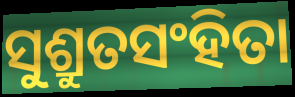
ସୁଶ୍ରୁତସଂହିତା